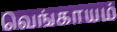
வெங்காயம்